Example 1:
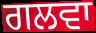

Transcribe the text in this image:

ਗਲਵਾ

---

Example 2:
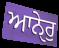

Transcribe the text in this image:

ਆਨੇੑਰੁ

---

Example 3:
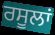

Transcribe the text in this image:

ਰਸੂਲਾਂ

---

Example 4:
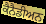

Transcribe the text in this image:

ਕੈਨੈਡੀਅਨ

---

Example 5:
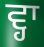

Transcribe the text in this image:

ਵ੍ਹਾ